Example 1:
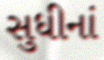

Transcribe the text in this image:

સુધીનાં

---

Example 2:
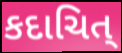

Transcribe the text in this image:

કદાચિત્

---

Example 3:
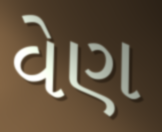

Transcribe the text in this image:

વેણ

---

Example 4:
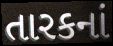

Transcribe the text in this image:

તારકનાં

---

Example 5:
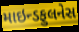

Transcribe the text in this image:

માઇન્ડફુલનેસ